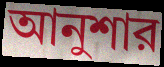
আনুশার